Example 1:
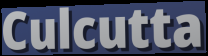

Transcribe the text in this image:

Culcutta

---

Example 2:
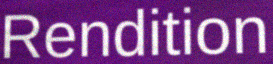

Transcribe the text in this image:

Rendition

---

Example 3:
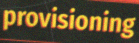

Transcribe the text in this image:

provisioning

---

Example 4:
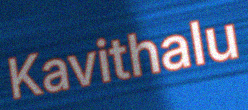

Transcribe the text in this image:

Kavithalu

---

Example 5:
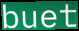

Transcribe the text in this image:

buet